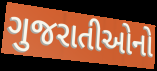
ગુજરાતીઓનો